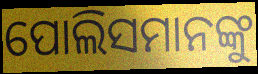
ପୋଲିସମାନଙ୍କୁ